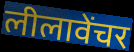
लीलावेंचर